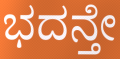
ಭದನ್ತೇ